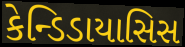
કેન્ડિડાયાસિસ